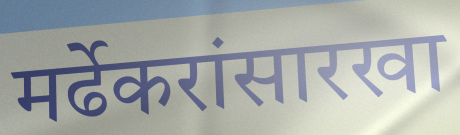
मर्ढेकरांसारखा